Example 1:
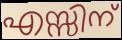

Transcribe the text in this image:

എസ്സിന്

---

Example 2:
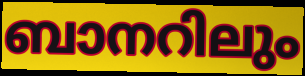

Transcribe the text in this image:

ബാനറിലും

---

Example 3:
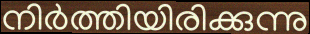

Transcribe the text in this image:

നിർത്തിയിരിക്കുന്നു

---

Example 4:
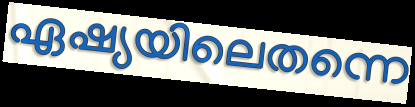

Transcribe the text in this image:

ഏഷ്യയിലെതന്നെ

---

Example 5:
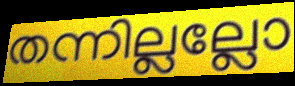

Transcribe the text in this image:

തന്നില്ലല്ലോ